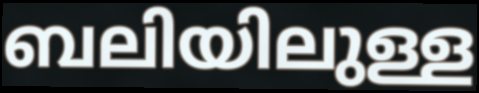
ബലിയിലുള്ള